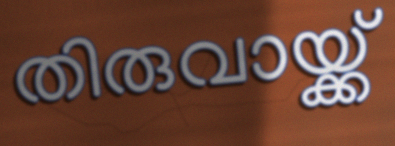
തിരുവായ്ക്ക്